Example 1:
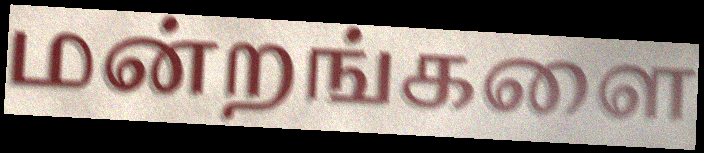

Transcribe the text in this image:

மன்றங்களை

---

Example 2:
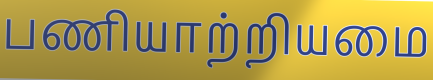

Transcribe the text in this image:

பணியாற்றியமை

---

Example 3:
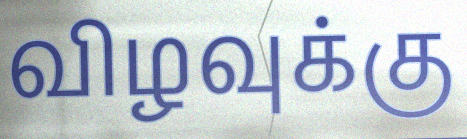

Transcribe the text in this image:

விழவுக்கு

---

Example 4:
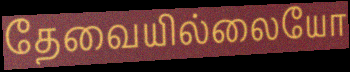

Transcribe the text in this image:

தேவையில்லையோ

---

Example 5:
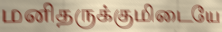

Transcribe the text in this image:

மனிதருக்குமிடையே